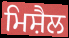
ਮਿਸ਼ੈਲ